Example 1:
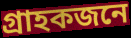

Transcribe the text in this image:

গ্ৰাহকজনে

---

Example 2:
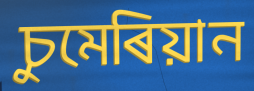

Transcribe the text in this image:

চুমেৰিয়ান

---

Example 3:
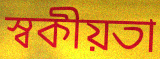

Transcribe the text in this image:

স্বকীয়তা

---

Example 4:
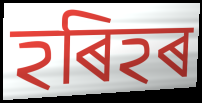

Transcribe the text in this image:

হৰিহৰ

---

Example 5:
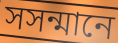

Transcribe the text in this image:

সসন্মানে